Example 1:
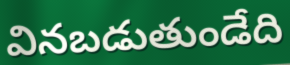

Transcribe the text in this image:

వినబడుతుండేది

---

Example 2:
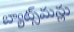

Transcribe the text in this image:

బ్యాట్స్‌మన్లు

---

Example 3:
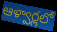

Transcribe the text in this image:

ఆళ్వార్లలో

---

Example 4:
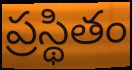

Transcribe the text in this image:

ప్రస్థితం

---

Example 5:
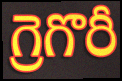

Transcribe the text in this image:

గ్రెగొరీ